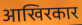
आखिरकार